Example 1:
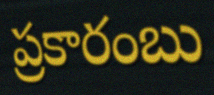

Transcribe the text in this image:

ప్రకారంబు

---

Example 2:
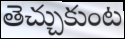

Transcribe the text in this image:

తెచ్చుకుంట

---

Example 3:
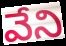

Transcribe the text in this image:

వేని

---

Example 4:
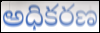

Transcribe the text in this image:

అధికరణ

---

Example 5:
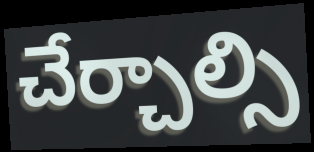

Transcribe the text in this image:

చేర్చాల్సి